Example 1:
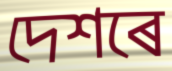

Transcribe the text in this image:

দেশৰে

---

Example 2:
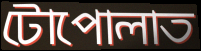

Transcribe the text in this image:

টোপোলাত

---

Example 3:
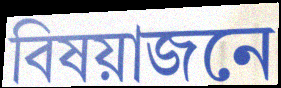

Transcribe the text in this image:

বিষয়াজনে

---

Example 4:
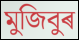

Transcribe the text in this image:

মুজিবুৰ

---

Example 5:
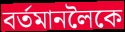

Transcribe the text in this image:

বৰ্তমানলৈকে